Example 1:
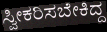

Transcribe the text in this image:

ಸ್ವೀಕರಿಸಬೇಕಿದ್ದ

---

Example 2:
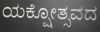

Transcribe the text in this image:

ಯಕ್ಷೋತ್ಸವದ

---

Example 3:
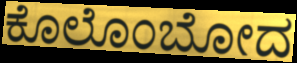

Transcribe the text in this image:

ಕೊಲೊಂಬೋದ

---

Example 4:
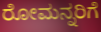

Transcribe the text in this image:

ರೋಮನ್ನರಿಗೆ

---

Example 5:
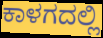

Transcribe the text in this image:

ಕಾಳಗದಲ್ಲಿ